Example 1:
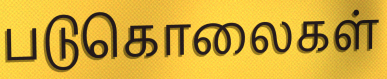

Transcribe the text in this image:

படுகொலைகள்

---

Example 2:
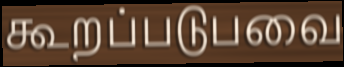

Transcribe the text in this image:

கூறப்படுபவை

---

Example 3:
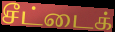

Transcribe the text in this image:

சீட்டைக்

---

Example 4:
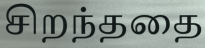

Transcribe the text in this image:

சிறந்ததை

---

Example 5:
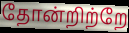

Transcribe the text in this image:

தோன்றிற்றே